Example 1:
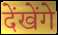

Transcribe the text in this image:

देंखेंगे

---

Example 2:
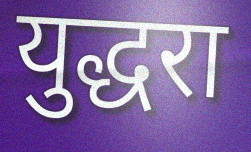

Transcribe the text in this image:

युद्धरा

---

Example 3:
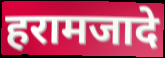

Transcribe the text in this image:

हरामजादे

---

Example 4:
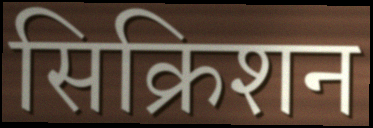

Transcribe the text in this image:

सिक्रिशन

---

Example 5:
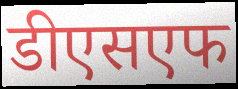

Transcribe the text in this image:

डीएसएफ